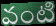
వంటి